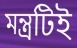
মন্ত্রটিই